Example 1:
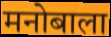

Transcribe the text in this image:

मनोबाला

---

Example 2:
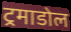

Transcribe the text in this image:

ट्रमाडोल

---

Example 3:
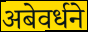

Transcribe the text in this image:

अबेवर्धने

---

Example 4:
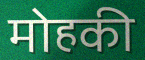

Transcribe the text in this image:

मोहकी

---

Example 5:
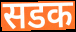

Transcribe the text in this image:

सडक